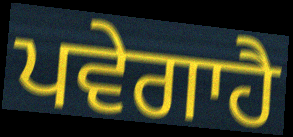
ਪਵੇਗਾਹੈ